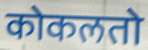
कोकलतो